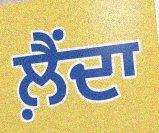
ਲ਼ੈਂਦਾ